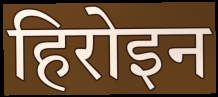
हिरोइन